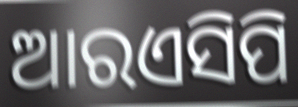
ଆରଏସିପି